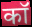
कॉ